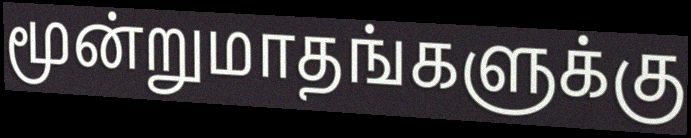
மூன்றுமாதங்களுக்கு